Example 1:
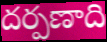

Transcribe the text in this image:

దర్పణాది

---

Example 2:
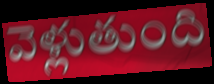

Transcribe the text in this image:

వెళ్లుతుంది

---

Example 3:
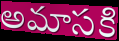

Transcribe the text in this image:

అమాసకి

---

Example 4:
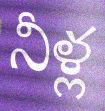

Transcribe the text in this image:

నీళ్ల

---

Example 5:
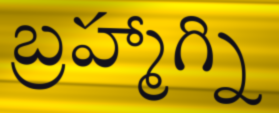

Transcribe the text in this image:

బ్రహ్మాగ్ని